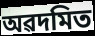
অৱদমিত